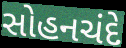
સોહનચંદે